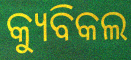
କ୍ୟୁବିକଲ